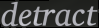
detract